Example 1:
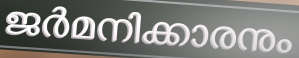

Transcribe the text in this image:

ജർമനിക്കാരനും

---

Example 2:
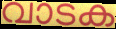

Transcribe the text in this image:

വാടക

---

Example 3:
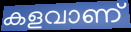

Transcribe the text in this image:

കളവാണ്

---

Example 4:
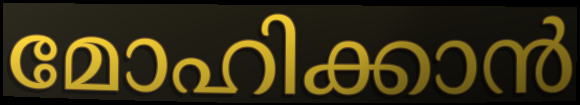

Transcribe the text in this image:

മോഹിക്കാൻ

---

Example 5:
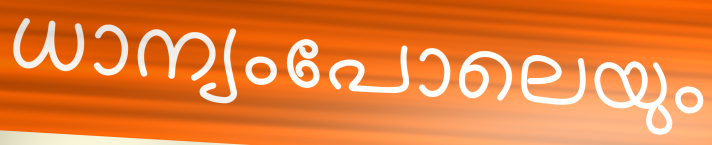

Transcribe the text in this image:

ധാന്യംപോലെയും